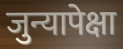
जुन्यापेक्षा